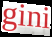
gini